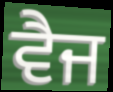
ਵੈਜ